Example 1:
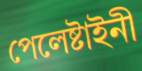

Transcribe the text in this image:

পেলেষ্টাইনী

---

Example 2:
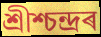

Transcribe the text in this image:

শ্ৰীশ্চন্দ্ৰৰ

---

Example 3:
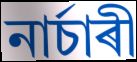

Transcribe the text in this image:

নাৰ্চাৰী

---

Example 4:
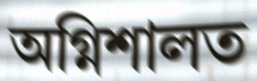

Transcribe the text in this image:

অগ্নিশালত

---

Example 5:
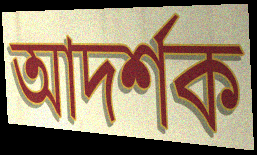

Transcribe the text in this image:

আদৰ্শক